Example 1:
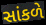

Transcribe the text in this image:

સાંકળે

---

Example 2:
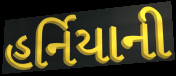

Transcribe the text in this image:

હર્નિયાની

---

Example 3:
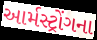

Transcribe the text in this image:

આર્મસ્ટ્રોંગના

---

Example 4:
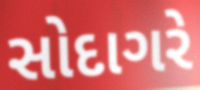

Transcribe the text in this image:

સોદાગરે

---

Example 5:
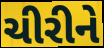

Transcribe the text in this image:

ચીરીને